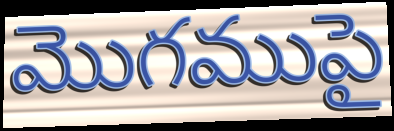
మొగముపై